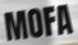
MOFA